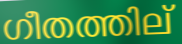
ഗീതത്തില്